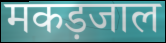
मकड़जाल